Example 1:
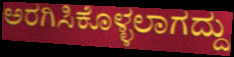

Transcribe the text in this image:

ಅರಗಿಸಿಕೊಳ್ಳಲಾಗದ್ದು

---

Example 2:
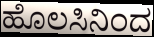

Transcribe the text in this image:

ಹೊಲಸಿನಿಂದ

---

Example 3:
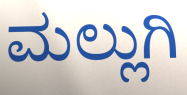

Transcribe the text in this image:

ಮಲ್ಲುಗಿ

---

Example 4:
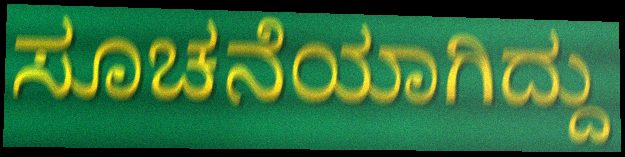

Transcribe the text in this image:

ಸೂಚನೆಯಾಗಿದ್ದು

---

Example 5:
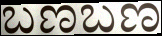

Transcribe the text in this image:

ಬಣಬಣ